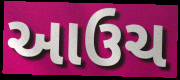
આઉચ